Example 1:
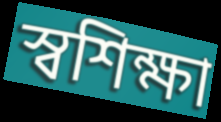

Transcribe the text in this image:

স্বশিক্ষা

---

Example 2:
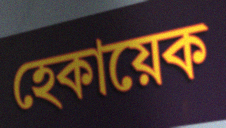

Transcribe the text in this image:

হেকায়েক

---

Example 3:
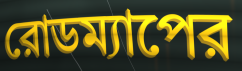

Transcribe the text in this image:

রোডম্যাপের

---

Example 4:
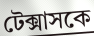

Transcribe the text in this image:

টেক্সাসকে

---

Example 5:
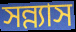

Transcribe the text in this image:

সন্ন্যাস